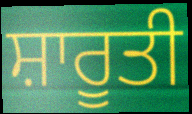
ਸ਼ਾਰੂਤੀ